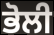
ਭੋਲੀ